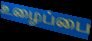
உழைப்பை